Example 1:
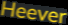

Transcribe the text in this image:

Heever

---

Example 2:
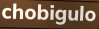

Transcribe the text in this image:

chobigulo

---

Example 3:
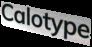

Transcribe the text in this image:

Calotype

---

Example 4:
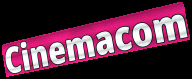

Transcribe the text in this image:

Cinemacom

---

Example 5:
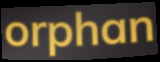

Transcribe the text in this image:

orphan